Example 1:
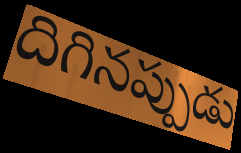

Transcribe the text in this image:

దిగినప్పుడు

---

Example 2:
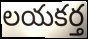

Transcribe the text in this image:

లయకర్త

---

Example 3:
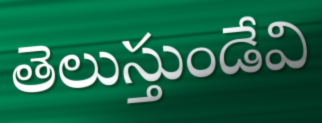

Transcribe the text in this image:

తెలుస్తుండేవి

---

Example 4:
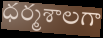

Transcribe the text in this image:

ధర్మశాలగా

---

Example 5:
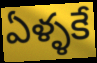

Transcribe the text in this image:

ఏళ్ళకే